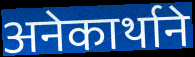
अनेकार्थाने